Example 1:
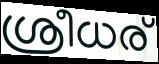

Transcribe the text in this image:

ശ്രീധര്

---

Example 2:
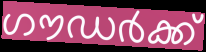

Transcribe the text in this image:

ഗൗഡർക്ക്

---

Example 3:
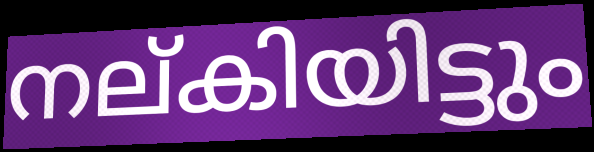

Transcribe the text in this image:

നല്കിയിട്ടും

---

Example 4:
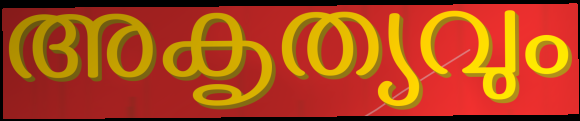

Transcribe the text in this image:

അകൃത്യവും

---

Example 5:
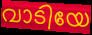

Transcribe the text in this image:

വാടിയേ